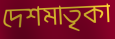
দেশমাতৃকা